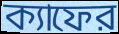
ক্যাফের